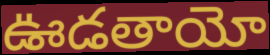
ఊడతాయో